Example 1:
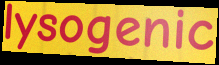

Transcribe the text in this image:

lysogenic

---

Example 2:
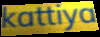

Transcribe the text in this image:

kattiya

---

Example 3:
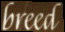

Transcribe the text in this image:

breed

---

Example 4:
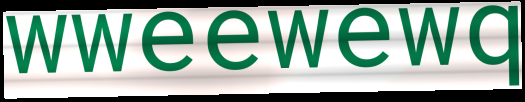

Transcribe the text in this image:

wweewewq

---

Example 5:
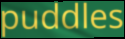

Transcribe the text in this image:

puddles